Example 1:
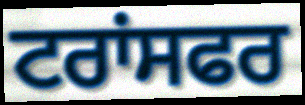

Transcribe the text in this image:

ਟਰਾਂਸਫਰ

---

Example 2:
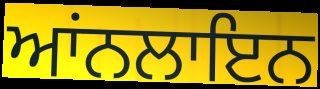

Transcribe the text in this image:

ਆਂਨਲਾਇਨ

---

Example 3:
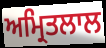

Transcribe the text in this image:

ਅਮ੍ਰਿਤਲਾਲ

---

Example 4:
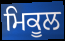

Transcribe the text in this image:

ਮਿਕੂਲ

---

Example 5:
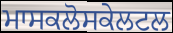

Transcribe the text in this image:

ਮਾਸਕਲੋਸਕੇਲਟਲ